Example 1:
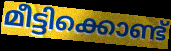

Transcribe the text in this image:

മീട്ടിക്കൊണ്ട്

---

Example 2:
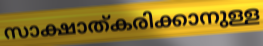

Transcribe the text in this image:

സാക്ഷാത്കരിക്കാനുള്ള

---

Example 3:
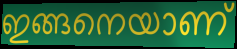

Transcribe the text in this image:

ഇങ്ങനെയാണ്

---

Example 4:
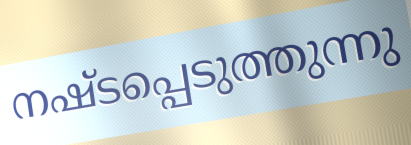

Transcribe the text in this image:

നഷ്ടപ്പെടുത്തുന്നു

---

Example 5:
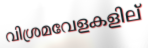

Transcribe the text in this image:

വിശ്രമവേളകളില്